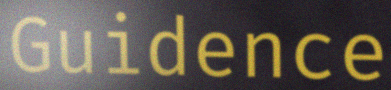
Guidence